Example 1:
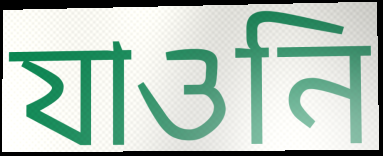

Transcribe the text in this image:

যাওনি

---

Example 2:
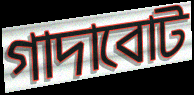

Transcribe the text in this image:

গাদাবোট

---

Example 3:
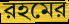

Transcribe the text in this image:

রহমের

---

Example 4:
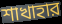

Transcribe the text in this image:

শাখাহার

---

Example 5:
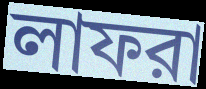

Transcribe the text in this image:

লাফরা